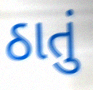
ઠાતું